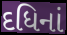
દધિનાં